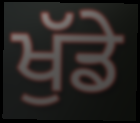
ਖੁੱਡੇ